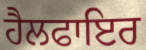
ਹੈਲਫਾਇਰ